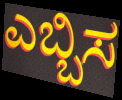
ಎಬ್ಬಿಸ